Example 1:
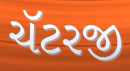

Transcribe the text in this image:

ચૅટરજી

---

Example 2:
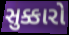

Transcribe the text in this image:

સુક્કારો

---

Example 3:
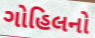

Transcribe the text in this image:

ગોહિલનો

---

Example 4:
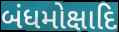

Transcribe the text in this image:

બંધમોક્ષાદિ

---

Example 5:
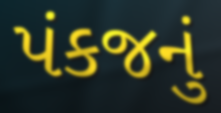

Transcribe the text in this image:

પંકજનું